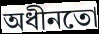
অধীনতো